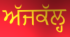
ਅੱਜਕੱਲ੍ਹ